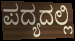
ಪದ್ಯದಲ್ಲಿ